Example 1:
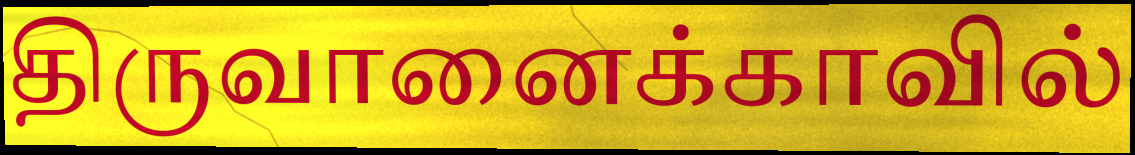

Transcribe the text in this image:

திருவானைக்காவில்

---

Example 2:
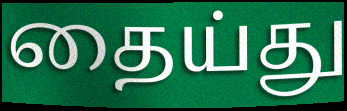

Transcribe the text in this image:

தைய்து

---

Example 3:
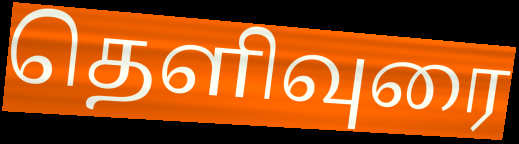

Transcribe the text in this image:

தெளிவுரை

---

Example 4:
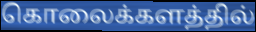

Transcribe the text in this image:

கொலைக்களத்தில்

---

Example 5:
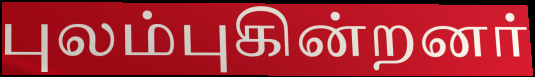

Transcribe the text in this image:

புலம்புகின்றனர்